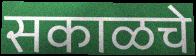
सकाळचे